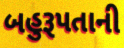
બહુરૂપતાની